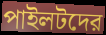
পাইলটদের